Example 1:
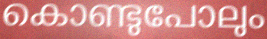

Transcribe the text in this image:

കൊണ്ടുപോലും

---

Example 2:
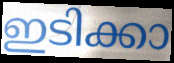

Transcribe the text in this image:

ഇടിക്കാ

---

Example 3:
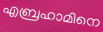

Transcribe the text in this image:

എബ്രഹാമിനെ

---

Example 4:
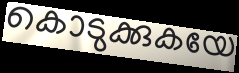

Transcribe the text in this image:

കൊടുക്കുകയേ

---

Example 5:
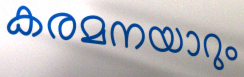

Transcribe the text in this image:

കരമനയാറും